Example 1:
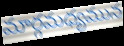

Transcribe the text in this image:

మార్గమధ్యమున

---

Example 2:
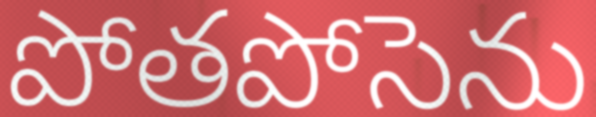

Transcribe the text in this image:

పోతపోసెను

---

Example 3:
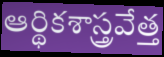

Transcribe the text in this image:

ఆర్థికశాస్త్రవేత్త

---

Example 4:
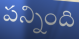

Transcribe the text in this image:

పన్నింది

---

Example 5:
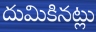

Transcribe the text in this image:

దుమికినట్లు